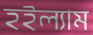
হইল্যাম